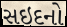
સઇદનો